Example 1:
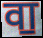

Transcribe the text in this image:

वा॒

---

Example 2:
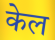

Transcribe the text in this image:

केल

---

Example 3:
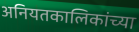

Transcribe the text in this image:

अनियतकालिकांच्या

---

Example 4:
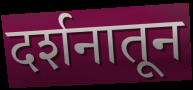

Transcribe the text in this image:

दर्शनातून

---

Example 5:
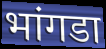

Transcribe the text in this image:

भांगडा